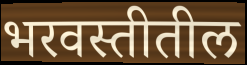
भरवस्तीतील